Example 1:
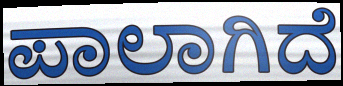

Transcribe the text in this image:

ಪಾಲಾಗಿದೆ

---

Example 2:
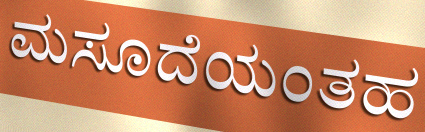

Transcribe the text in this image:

ಮಸೂದೆಯಂತಹ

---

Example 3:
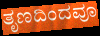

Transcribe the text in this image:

ತೃಣದಿಂದವೂ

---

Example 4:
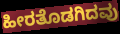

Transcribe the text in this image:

ಹೀರತೊಡಗಿದವು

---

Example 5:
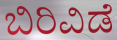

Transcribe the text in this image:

ಬಿರಿವಿಡೆ